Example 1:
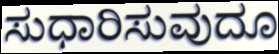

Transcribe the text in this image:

ಸುಧಾರಿಸುವುದೂ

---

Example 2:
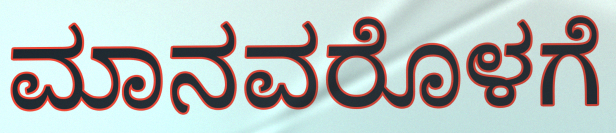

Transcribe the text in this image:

ಮಾನವರೊಳಗೆ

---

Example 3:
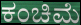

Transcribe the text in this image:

ಕಂಚಿಮೆ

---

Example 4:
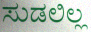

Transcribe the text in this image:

ಸುಡಲಿಲ್ಲ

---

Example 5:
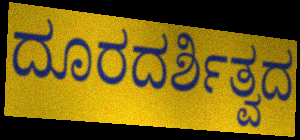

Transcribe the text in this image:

ದೂರದರ್ಶಿತ್ವದ